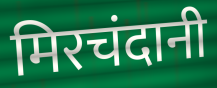
मिरचंदानी